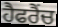
ਹੈਫਰੈਂਚ